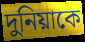
দুনিয়াকে